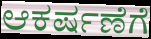
ಆಕರ್ಷಣೆಗೆ